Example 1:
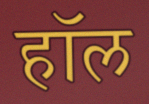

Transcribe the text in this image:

हॉल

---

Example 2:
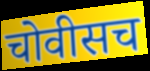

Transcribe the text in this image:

चोवीसच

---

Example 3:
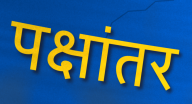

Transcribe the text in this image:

पक्षांतर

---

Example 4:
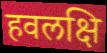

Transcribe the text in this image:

हवलक्षि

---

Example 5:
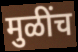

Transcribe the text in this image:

मुळींच